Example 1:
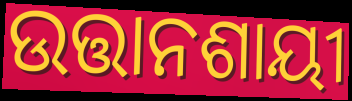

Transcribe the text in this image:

ଉତ୍ତାନଶାୟୀ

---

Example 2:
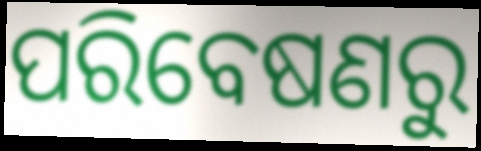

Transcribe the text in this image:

ପରିବେଷଣରୁ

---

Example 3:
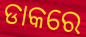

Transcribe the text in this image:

ଡାକରେ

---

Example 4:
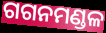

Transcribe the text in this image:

ଗଗନମଣ୍ଡଳ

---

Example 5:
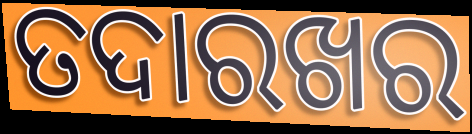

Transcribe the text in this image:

ତଦାରଖର